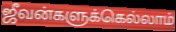
ஜீவன்களுக்கெல்லாம்